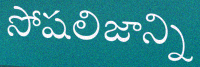
సోషలిజాన్ని